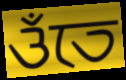
ওঁতে